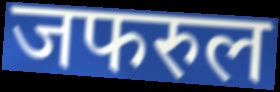
जफरुल